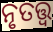
ନୃତତ୍ତ୍ଵ